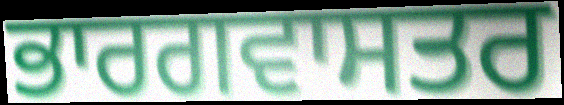
ਭਾਰਗਵਾਸਤਰ